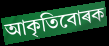
আকৃতিবোৰক